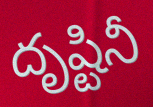
దృష్టినీ